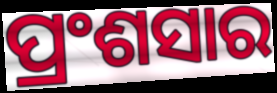
ପ୍ରଂଶସାର